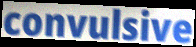
convulsive